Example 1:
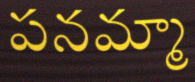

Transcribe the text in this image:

పనమ్మా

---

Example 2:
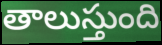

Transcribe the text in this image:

తాలుస్తుంది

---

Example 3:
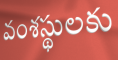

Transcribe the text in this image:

వంశస్థులకు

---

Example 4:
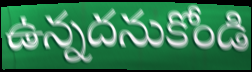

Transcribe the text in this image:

ఉన్నదనుకోండి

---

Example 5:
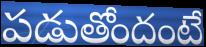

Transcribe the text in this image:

పడుతోందంటే